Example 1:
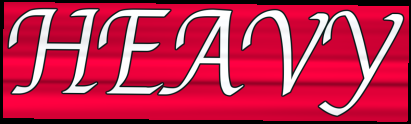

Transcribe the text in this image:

HEAVY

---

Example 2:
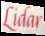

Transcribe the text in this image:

Lidar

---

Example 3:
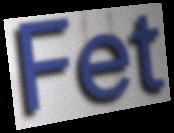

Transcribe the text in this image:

Fet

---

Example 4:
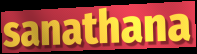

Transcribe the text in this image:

sanathana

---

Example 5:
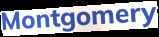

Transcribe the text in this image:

Montgomery